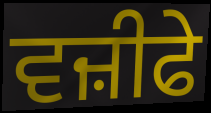
ਵਜ਼ੀਫੇ